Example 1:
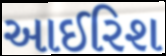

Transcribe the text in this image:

આઈરિશ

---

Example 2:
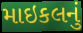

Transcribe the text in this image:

માઇકલનું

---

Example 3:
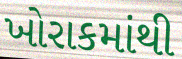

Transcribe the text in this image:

ખોરાકમાંથી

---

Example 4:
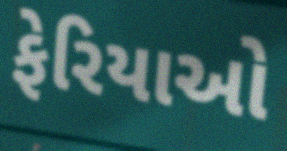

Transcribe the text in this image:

ફેરિયાઓ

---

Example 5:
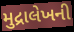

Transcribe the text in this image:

મુદ્રાલેખની